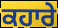
ਕਹਾਰੇ